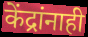
केंद्रांनाही